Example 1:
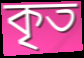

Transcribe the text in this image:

কৃত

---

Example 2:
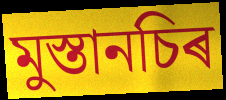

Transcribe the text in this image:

মুস্তানচিৰ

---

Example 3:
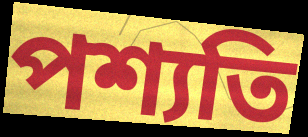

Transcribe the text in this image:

পশ্যতি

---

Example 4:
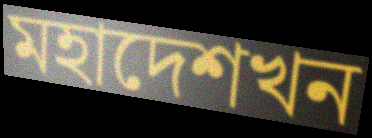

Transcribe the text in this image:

মহাদেশখন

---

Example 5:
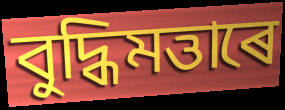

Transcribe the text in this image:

বুদ্ধিমত্তাৰে